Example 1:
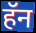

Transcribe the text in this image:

हॅन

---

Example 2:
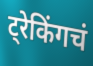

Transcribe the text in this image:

ट्रेकिंगचं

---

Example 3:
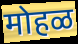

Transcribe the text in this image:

मोहळ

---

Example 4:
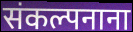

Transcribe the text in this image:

संकल्पनाना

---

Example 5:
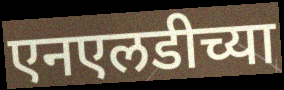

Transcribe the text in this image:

एनएलडीच्या